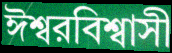
ঈশ্বরবিশ্বাসী